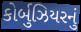
કોર્બુઝિયરનું